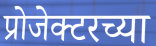
प्रोजेक्टरच्या